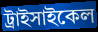
ট্রাইসাইকেল